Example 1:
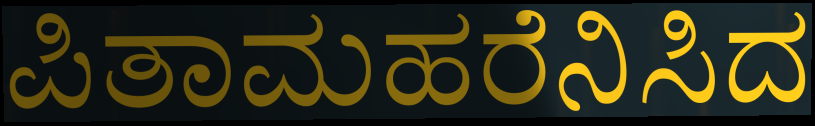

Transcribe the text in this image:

ಪಿತಾಮಹರೆನಿಸಿದ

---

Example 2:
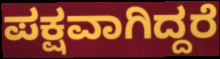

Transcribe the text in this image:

ಪಕ್ಷವಾಗಿದ್ದರೆ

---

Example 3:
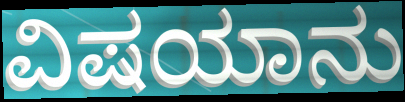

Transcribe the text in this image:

ವಿಷಯಾನು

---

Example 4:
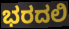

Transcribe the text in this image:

ಭರದಲಿ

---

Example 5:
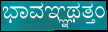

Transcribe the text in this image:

ಭಾವಞ್ಞಥತ್ತಂ